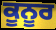
ਕੂਨੂਰ